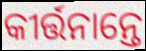
କୀର୍ତ୍ତନାନ୍ତେ